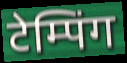
टेम्पिंग